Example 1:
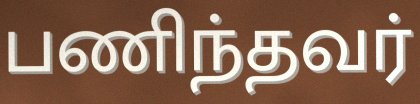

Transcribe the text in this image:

பணிந்தவர்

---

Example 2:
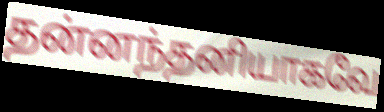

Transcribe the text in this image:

தன்னந்தனியாகவே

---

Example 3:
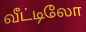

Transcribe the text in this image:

வீட்டிலோ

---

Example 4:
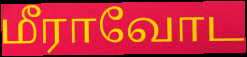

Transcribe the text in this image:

மீராவோட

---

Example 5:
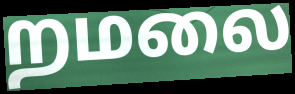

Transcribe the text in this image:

றமலை